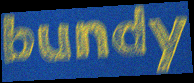
bundy